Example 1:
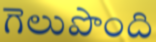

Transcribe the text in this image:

గెలుపొంది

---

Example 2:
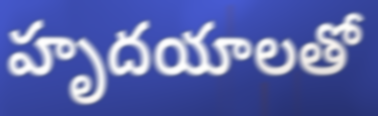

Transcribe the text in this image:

హృదయాలతో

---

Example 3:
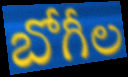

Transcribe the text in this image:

బోగీల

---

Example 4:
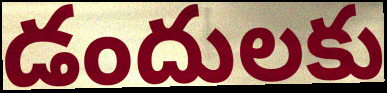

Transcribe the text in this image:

డందులకు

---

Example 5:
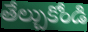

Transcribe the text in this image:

తేల్చుకోండి